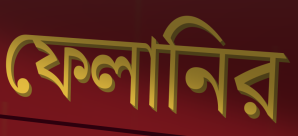
ফেলানির